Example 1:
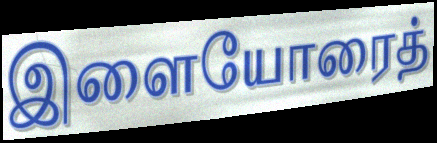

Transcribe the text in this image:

இளையோரைத்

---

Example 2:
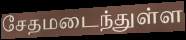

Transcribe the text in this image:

சேதமடைந்துள்ள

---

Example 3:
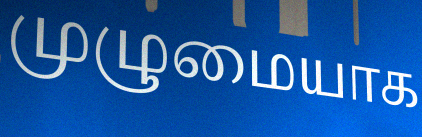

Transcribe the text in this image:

முழுமையாக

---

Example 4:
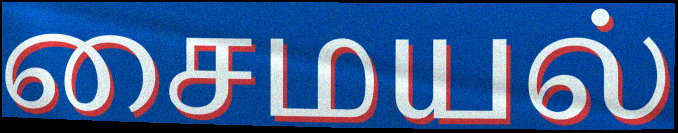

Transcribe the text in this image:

சைமயல்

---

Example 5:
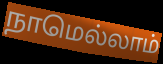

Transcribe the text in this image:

நாமெல்லாம்